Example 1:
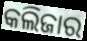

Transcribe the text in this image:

କଲିଜାର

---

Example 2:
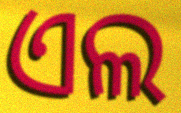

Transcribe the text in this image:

ଏଲ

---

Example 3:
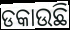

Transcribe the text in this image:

ଡକାଉଛି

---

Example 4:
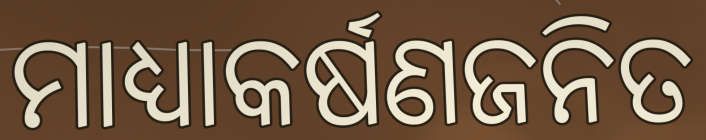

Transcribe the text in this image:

ମାଧ୍ୟାକର୍ଷଣଜନିତ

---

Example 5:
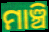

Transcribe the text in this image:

ମାଞ୍ଚି